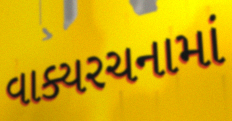
વાક્યરચનામાં